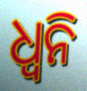
ଧ୍ବନି